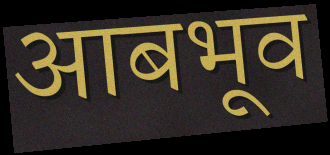
आबभूव